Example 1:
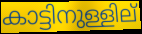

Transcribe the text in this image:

കാട്ടിനുള്ളില്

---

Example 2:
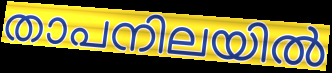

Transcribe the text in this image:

താപനിലയിൽ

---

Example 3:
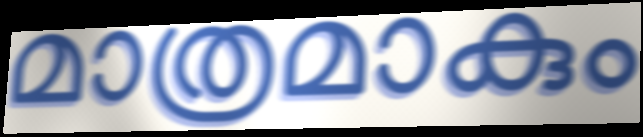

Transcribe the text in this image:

മാത്രമാകും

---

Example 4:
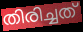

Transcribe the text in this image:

തിരിച്ചത്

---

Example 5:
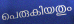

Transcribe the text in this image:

പെരുകിയതും